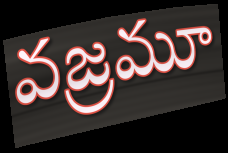
వజ్రమూ